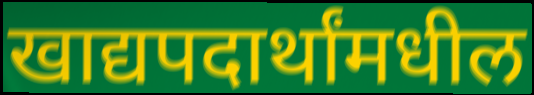
खाद्यपदार्थांमधील